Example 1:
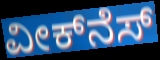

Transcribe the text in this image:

ವೀಕ್‌ನೆಸ್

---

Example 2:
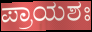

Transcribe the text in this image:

ಪ್ರಾಯಶಃ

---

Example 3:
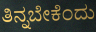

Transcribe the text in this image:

ತಿನ್ನಬೇಕೆಂದು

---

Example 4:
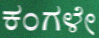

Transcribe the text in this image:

ಕಂಗಳೇ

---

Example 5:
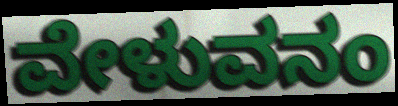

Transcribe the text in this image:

ವೇಳುವನಂ